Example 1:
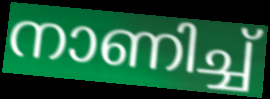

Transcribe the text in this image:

നാണിച്ച്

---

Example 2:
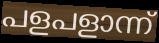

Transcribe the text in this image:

പളപളാന്ന്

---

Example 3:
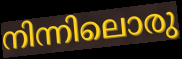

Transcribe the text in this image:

നിന്നിലൊരു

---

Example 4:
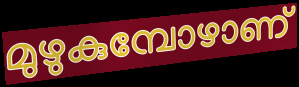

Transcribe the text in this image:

മുഴുകുമ്പോഴാണ്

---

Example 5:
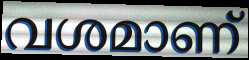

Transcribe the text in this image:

വശമാണ്